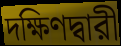
দক্ষিণদ্বারী